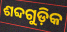
ଶବ୍ଦଗୁଡ଼ିକ